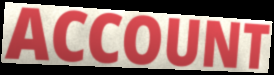
ACCOUNT